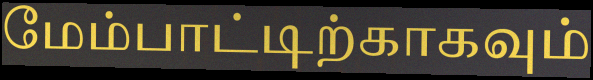
மேம்பாட்டிற்காகவும்